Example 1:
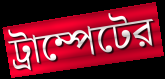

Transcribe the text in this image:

ট্রাম্পেটের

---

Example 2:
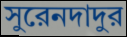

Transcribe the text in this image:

সুরেনদাদুর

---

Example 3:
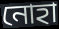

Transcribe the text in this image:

নোহা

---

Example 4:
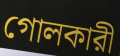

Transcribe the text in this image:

গোলকারী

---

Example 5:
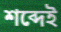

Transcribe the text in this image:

শব্দেই